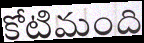
కోటిమంది